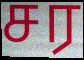
சர